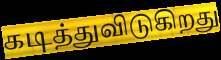
கடித்துவிடுகிறது